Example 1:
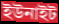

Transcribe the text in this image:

ইউনাইট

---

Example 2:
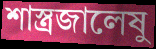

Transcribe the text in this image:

শাস্ত্রজালেষু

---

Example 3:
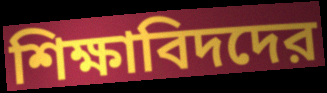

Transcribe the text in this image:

শিক্ষাবিদদের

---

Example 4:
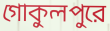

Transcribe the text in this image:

গোকুলপুরে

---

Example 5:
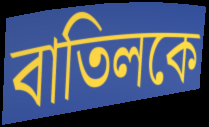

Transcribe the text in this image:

বাতিলকে